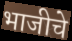
भाजीचे